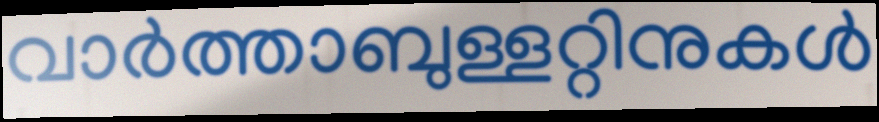
വാർത്താബുള്ളറ്റിനുകൾ